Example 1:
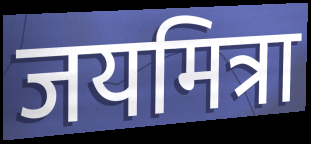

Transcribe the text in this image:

जयमित्रा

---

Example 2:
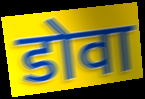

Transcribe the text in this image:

डोवा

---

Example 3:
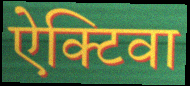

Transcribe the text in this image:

ऐक्टिवा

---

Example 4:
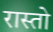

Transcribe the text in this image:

रास्तो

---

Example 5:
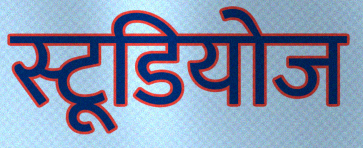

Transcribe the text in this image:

स्टूडियोज